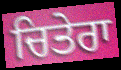
ਚਿਤੇਰਾ